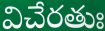
విచేరతుః